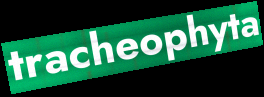
tracheophyta